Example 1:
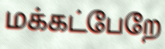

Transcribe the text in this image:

மக்கட்பேறே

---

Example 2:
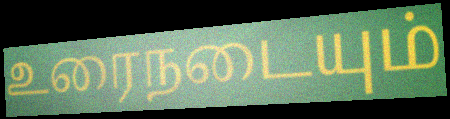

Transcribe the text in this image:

உரைநடையும்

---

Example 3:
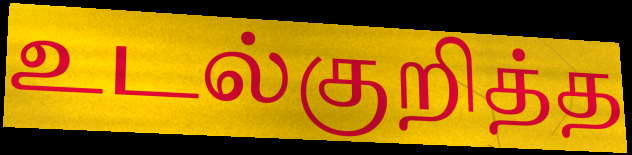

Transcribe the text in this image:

உடல்குறித்த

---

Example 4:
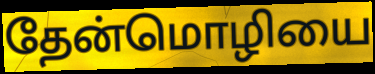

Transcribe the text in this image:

தேன்மொழியை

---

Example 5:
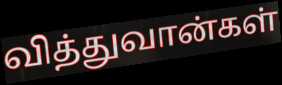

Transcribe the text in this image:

வித்துவான்கள்